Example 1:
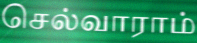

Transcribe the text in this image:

செல்வாராம்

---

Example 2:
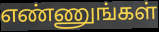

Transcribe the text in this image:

எண்ணுங்கள்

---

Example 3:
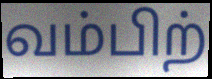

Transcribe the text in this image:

வம்பிற்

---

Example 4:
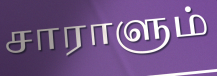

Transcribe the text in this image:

சாராளும்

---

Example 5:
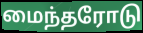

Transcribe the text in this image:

மைந்தரோடு